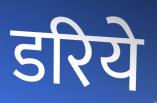
डरिये